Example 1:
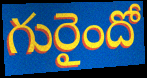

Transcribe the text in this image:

గురైందో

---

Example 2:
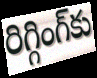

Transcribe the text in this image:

రిగ్గింగ్‌కు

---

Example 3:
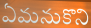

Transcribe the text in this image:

ఏమనుకొని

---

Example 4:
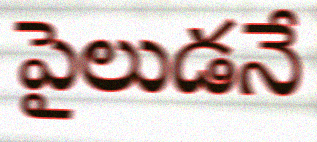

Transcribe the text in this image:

పైలుడనే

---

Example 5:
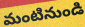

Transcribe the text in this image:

మంటినుండి